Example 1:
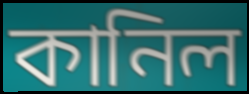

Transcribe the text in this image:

কানিল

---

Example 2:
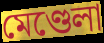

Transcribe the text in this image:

মেণ্ডেলা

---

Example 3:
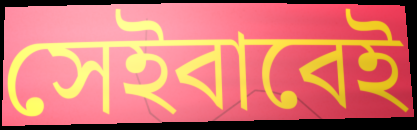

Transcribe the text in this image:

সেইবাবেই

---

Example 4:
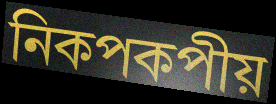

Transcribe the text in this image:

নিকপকপীয়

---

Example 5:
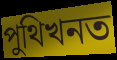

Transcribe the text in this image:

পুথিখনত